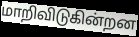
மாறிவிடுகின்றன